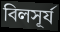
বিলসূর্য